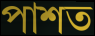
পাশত